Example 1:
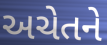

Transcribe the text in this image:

અચેતને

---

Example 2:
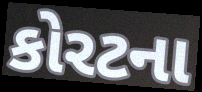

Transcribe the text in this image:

કોરટના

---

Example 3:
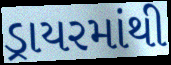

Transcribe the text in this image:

ડ્રાયરમાંથી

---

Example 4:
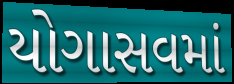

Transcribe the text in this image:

યોગાસવમાં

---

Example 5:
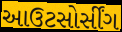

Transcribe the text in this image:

આઉટસોર્સીંગ